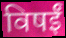
विषईं